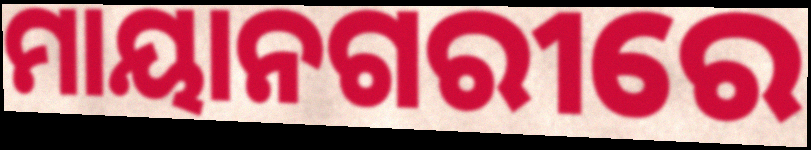
ମାୟାନଗରୀରେ